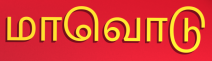
மாவொடு